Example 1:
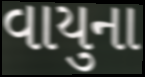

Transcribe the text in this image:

વાયુના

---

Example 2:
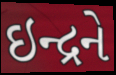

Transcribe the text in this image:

ઇન્દ્રને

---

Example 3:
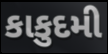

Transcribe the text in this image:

કાકુદમી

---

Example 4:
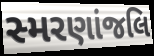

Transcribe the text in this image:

સ્મરણાંજલિ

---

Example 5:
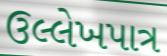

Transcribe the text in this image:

ઉલ્લેખપાત્ર